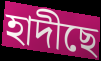
হাদীছে